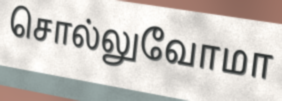
சொல்லுவோமா